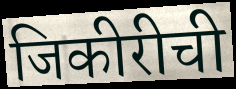
जिकीरीची